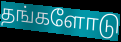
தங்களோடு